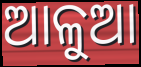
ଆଳୁଆ